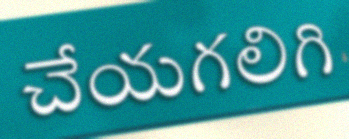
చేయగలిగి